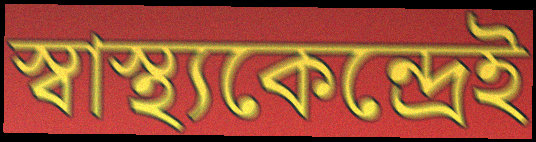
স্বাস্থ্যকেন্দ্রেই